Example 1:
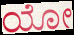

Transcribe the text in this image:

ಯೋ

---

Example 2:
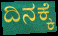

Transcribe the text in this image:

ದಿನಕ್ಕೆ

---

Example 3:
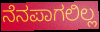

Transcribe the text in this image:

ನೆನಪಾಗಲಿಲ್ಲ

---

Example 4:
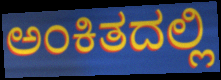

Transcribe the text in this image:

ಅಂಕಿತದಲ್ಲಿ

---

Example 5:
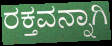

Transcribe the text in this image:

ರಕ್ತವನ್ನಾಗಿ